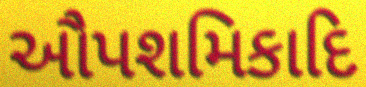
ઔપશમિકાદિ